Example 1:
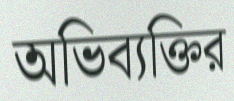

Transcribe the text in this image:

অভিব্যক্তির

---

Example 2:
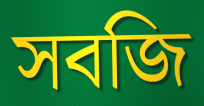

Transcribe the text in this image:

সবজি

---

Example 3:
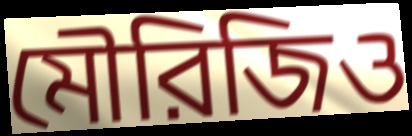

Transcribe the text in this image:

মৌরিজিও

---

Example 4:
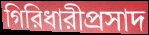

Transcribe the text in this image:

গিরিধারীপ্রসাদ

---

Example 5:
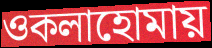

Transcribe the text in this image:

ওকলাহোমায়